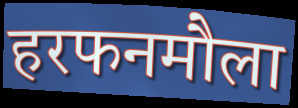
हरफनमौला